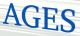
AGES